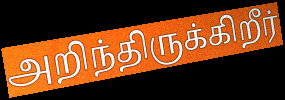
அறிந்திருக்கிறீர்